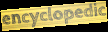
encyclopedic